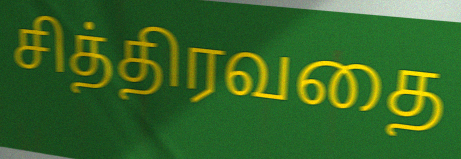
சித்திரவதை